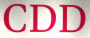
CDD